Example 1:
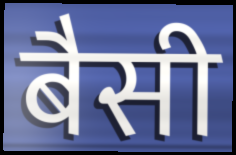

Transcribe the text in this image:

बैसी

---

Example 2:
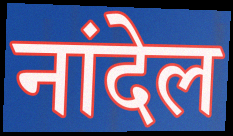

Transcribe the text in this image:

नांदेल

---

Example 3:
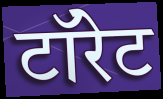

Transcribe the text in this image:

टॉरेट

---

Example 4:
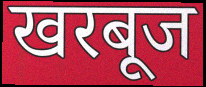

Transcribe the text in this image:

खरबूज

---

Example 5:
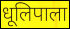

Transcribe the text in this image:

धूलिपाला